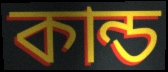
কান্ড